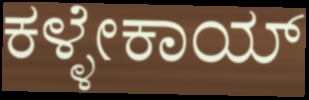
ಕಳ್ಳೇಕಾಯ್